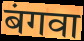
बंगवा